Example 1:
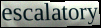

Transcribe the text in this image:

escalatory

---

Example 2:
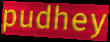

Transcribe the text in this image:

pudhey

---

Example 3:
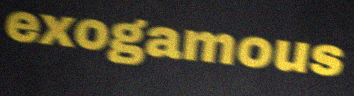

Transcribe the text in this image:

exogamous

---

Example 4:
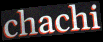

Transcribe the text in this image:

chachi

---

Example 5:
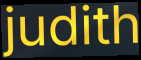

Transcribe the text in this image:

judith